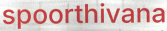
spoorthivana